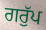
ਗਰੁੱਪ